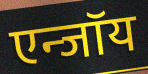
एन्जॉय